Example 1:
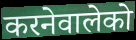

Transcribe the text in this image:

करनेवालेको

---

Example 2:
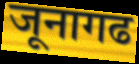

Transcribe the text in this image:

जूनागढ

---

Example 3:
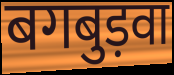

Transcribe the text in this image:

बगबुड़वा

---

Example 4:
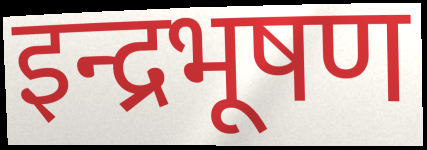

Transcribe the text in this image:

इन्द्रभूषण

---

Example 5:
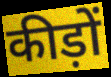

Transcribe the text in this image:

कीड़ों